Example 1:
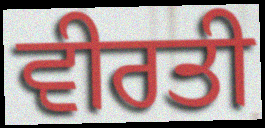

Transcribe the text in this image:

ਵੀਰਤੀ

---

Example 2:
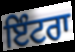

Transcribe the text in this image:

ਇੰਟਰਾ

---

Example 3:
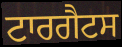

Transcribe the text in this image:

ਟਾਰਗੈਟਸ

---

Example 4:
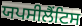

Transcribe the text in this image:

ਯਪਸੀਲੈਂਟਿਸ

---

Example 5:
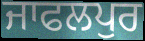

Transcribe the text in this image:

ਜਾਫਲਪੁਰ